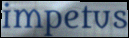
impetus